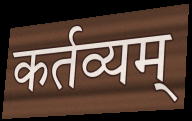
कर्तव्यम्